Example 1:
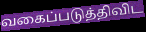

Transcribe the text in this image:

வகைப்படுத்திவிட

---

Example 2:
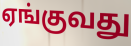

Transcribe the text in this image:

ஏங்குவது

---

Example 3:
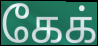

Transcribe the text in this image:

கேக்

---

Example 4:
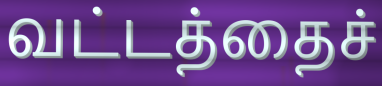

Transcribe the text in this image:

வட்டத்தைச்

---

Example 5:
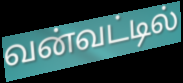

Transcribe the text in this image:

வன்வட்டில்